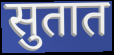
सुतात